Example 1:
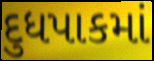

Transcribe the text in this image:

દુધપાકમાં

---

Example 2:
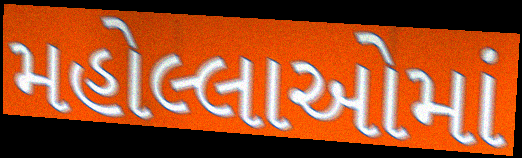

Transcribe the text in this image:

મહોલ્લાઓમાં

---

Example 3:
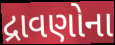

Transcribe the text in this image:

દ્રાવણોના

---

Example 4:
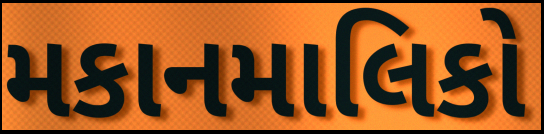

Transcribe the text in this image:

મકાનમાલિકો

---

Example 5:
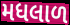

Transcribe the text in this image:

મધલાળ